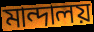
মান্দালয়